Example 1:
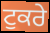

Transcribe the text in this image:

ਟੁਕਰੇ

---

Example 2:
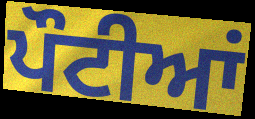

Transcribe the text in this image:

ਪੌਟੀਆਂ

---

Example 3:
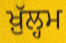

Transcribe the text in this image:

ਖ਼ੁੱਲ੍ਹਮ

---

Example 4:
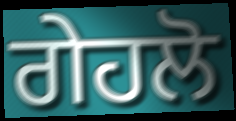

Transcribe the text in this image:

ਗੇਹਲੋ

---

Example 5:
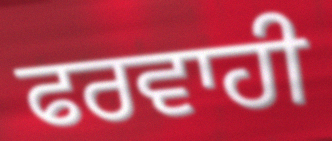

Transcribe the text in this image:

ਫਰਵਾਹੀ